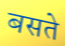
बसते